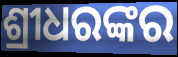
ଶ୍ରୀଧରଙ୍କର